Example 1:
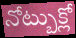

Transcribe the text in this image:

నోట్బుక్లో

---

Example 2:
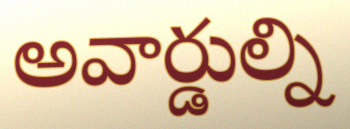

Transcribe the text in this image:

అవార్డుల్ని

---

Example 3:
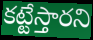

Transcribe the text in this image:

కట్టేస్తారని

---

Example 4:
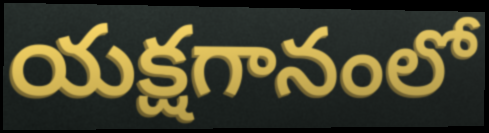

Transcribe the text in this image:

యక్షగానంలో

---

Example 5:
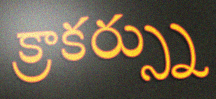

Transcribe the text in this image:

క్రాకర్స్ను